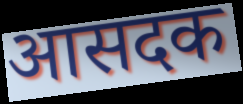
आसदक